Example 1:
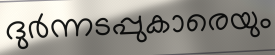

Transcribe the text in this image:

ദുർന്നടപ്പുകാരെയും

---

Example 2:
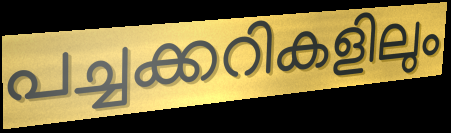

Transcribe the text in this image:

പച്ചക്കറികളിലും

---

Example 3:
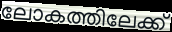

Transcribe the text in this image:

ലോകത്തിലേക്ക്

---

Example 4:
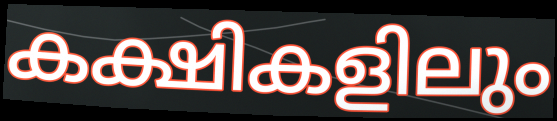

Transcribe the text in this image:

കക്ഷികളിലും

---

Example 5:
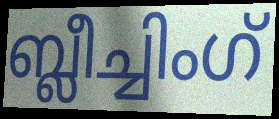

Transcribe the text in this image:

ബ്ലീച്ചിംഗ്